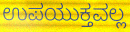
ಉಪಯುಕ್ತವಲ್ಲ